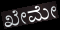
ಖೇಮೇ